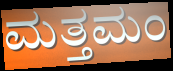
ಮತ್ತಮಂ